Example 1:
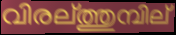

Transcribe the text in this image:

വിരല്ത്തുമ്പില്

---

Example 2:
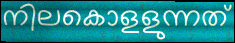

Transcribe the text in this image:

നിലകൊളളുന്നത്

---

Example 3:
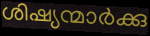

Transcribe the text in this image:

ശിഷ്യന്മാർക്കു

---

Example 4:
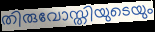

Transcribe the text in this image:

തിരുവോസ്തിയുടെയും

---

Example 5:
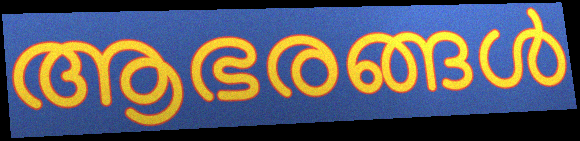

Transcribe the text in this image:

ആഭരങ്ങൾ